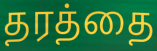
தரத்தை